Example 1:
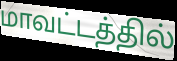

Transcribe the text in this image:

மாவட்டத்தில்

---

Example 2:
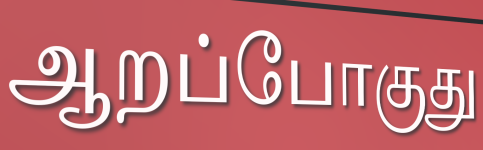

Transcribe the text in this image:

ஆறப்போகுது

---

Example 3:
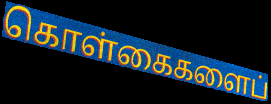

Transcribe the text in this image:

கொள்கைகளைப்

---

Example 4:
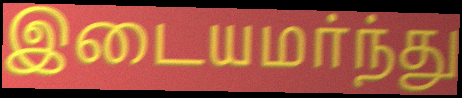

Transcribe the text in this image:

இடையமர்ந்து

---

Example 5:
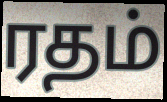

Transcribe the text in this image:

ரதம்